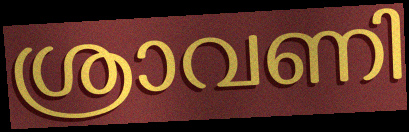
ശ്രാവണി